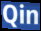
Qin